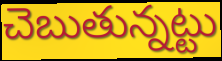
చెబుతున్నట్టు